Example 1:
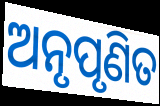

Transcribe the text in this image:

ଅନୃପୃଣିତ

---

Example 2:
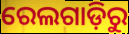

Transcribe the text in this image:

ରେଲଗାଡ଼ିରୁ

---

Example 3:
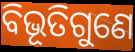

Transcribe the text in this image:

ବିଭୂତିଗୁଣେ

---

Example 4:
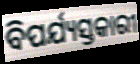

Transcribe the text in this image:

ବିପର୍ଯ୍ୟସ୍ତକାରୀ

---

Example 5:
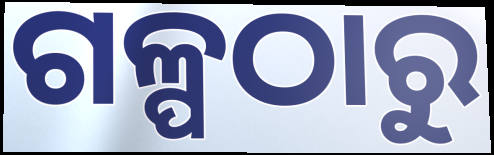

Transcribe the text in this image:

ଗଳ୍ପଠାରୁ